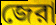
জেরা